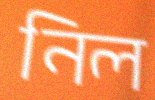
নিল